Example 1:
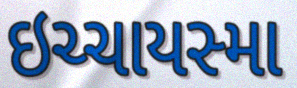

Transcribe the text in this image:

ઇચ્ચાયસ્મા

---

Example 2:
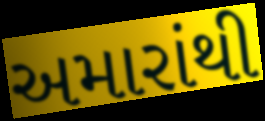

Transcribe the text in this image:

અમારાંથી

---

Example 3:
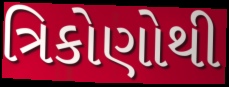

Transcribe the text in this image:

ત્રિકોણોથી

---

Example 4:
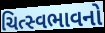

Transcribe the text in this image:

ચિત્સ્વભાવનો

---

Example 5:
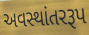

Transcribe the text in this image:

અવસ્થાંતરરૂપ